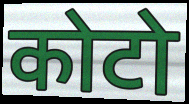
कोटो